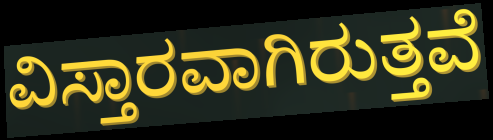
ವಿಸ್ತಾರವಾಗಿರುತ್ತವೆ